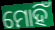
ମୋହିଁ